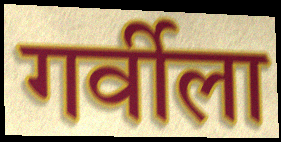
गर्वीला